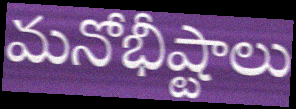
మనోభీష్టాలు